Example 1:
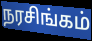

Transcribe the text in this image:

நரசிங்கம்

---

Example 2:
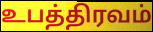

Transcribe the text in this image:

உபத்திரவம்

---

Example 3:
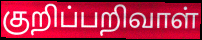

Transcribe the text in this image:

குறிப்பறிவாள்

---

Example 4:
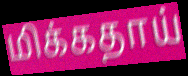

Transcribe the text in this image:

மிக்கதாய்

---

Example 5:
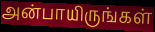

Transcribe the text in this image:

அன்பாயிருங்கள்